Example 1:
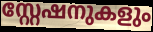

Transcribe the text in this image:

സ്റ്റേഷനുകളും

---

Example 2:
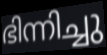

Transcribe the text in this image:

ഭിന്നിച്ചു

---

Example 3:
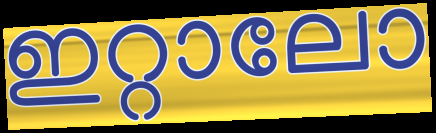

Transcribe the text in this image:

ഇറ്റാലോ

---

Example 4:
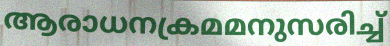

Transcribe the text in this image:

ആരാധനക്രമമനുസരിച്ച്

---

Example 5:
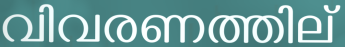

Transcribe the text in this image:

വിവരണത്തില്